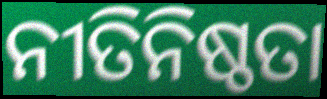
ନୀତିନିଷ୍ଠତା